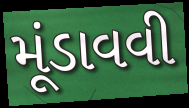
મૂંડાવવી